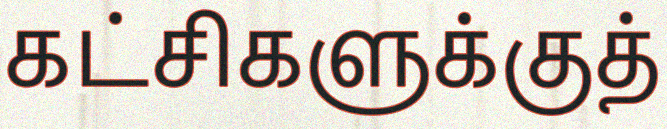
கட்சிகளுக்குத்